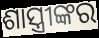
ଶାସ୍ତ୍ରୀଙ୍କର